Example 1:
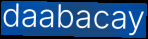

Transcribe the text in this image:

daabacay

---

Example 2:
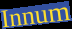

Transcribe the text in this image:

Innum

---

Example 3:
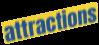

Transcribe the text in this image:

attractions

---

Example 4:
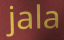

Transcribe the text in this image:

jala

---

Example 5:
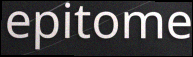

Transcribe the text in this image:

epitome